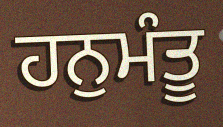
ਹਨੁਮੰਤੂ